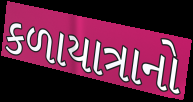
કળાયાત્રાનો